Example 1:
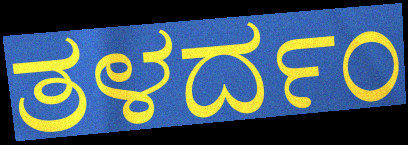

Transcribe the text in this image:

ತಳರ್ದಂ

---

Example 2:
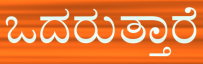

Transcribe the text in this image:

ಒದರುತ್ತಾರೆ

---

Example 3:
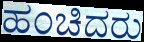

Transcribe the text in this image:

ಹಂಚಿದರು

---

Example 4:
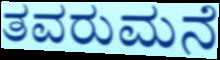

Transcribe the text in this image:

ತವರುಮನೆ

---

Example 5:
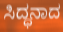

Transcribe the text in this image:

ಸಿದ್ಧನಾದ